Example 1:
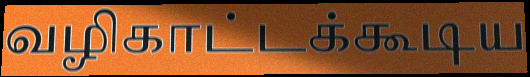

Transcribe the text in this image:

வழிகாட்டக்கூடிய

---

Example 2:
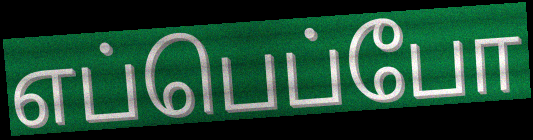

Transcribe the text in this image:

எப்பெப்போ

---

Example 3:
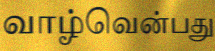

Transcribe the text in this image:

வாழ்வென்பது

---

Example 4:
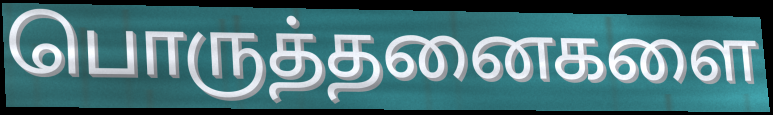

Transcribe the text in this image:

பொருத்தனைகளை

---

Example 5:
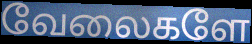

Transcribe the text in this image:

வேலைகளே